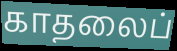
காதலைப்